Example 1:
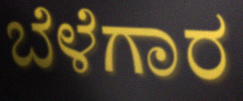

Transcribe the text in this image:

ಬೆಳೆಗಾರ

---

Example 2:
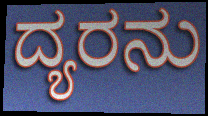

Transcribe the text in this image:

ದ್ಯರನು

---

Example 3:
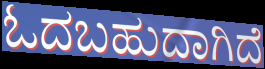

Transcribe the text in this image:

ಓದಬಹುದಾಗಿದೆ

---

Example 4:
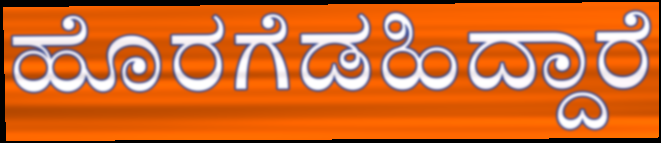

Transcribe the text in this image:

ಹೊರಗೆಡಹಿದ್ದಾರೆ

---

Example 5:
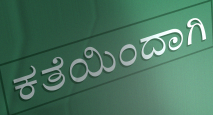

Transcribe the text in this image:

ಕತೆಯಿಂದಾಗಿ